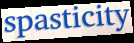
spasticity